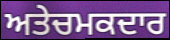
ਅਤੇਚਮਕਦਾਰ